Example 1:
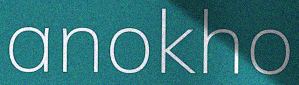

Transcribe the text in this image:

anokho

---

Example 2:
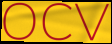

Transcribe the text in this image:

OCV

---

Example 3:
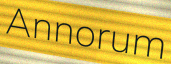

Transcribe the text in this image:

Annorum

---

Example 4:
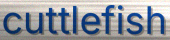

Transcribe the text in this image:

cuttlefish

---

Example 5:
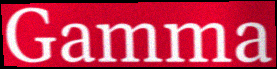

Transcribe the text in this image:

Gamma